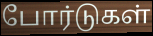
போர்டுகள்